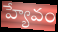
హ్యేవం